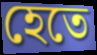
হেতে